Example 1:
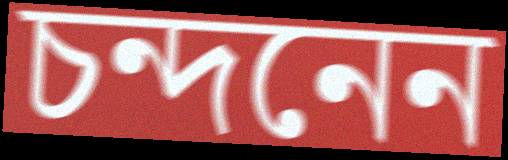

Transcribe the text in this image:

চন্দনেন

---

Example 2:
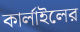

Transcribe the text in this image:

কার্লাইলের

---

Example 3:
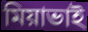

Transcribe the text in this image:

মিয়াভাই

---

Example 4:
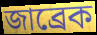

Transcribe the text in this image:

জাব্রেক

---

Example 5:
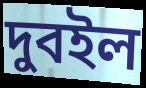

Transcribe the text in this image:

দুবইল